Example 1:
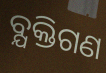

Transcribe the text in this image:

ବ୍ଯକ୍ତିଗଣ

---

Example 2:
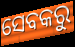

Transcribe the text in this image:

ସେବକରୁ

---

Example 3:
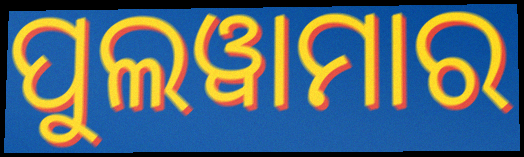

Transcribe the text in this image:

ପୁଲୱାମାର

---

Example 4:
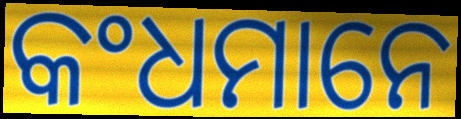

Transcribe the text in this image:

କଂଧମାନେ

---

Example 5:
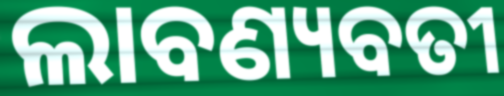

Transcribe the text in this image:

ଲାବଣ୍ୟବତୀ